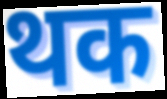
थक